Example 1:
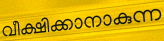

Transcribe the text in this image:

വീക്ഷിക്കാനാകുന്ന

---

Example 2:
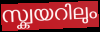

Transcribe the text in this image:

സ്ക്വയറിലും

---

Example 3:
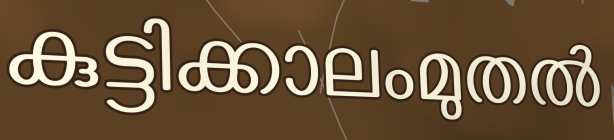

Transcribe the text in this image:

കുട്ടിക്കാലംമുതൽ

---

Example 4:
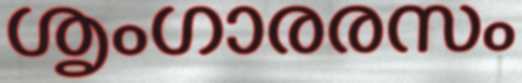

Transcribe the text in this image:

ശൃംഗാരരസം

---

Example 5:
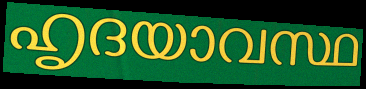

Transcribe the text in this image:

ഹൃദയാവസ്ഥ